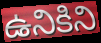
ఉనికిని